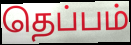
தெப்பம்